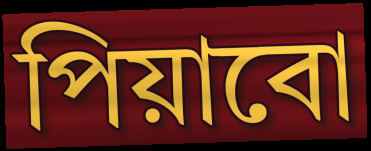
পিয়াবো